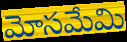
మోసమేమి